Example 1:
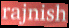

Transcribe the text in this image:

rajnish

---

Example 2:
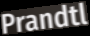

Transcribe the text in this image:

Prandtl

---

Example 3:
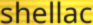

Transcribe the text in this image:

shellac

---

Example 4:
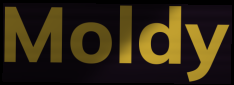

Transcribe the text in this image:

Moldy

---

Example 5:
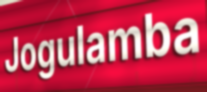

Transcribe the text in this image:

Jogulamba